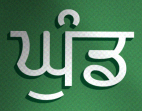
ਘੁੰਡ